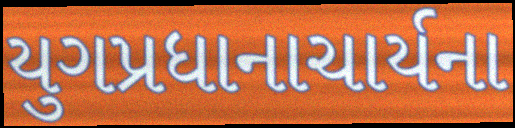
યુગપ્રધાનાચાર્યના